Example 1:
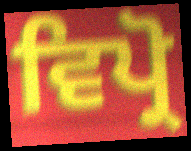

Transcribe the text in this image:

ਵਿਪ੍ਰੋ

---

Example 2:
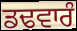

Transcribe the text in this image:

ਡਢਵਾਰੰ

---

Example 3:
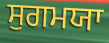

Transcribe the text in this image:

ਸੁਗਮਯਾ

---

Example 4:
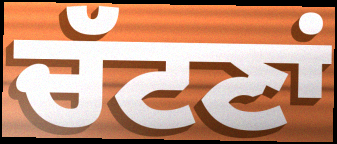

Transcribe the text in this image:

ਚੱਟਣਾਂ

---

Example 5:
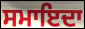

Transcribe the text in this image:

ਸਮਾਇਦਾ